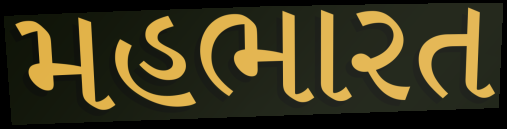
મહભારત